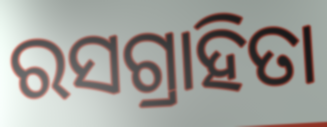
ରସଗ୍ରାହିତା